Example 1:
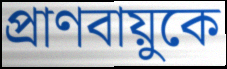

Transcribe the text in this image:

প্রাণবায়ুকে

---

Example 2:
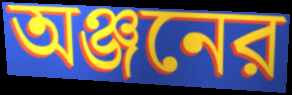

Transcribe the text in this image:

অঞ্জনের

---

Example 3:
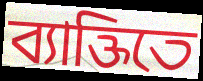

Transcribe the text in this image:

ব্যাক্তিতে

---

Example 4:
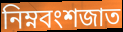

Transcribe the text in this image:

নিম্নবংশজাত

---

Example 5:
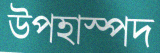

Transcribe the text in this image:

উপহাস্পদ